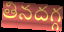
తినదగ్గ